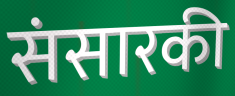
संसारकी